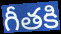
గీతకి